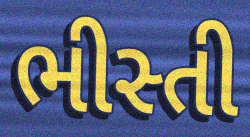
ભીસ્તી